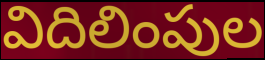
విదిలింపుల